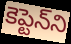
కెప్టెన్‌ని